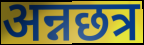
अन्नछत्र